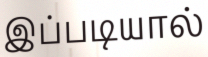
இப்படியால்